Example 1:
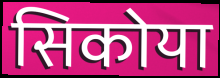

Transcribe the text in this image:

सिकोया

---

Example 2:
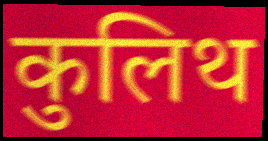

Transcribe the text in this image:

कुलिथ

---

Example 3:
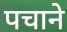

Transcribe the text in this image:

पचाने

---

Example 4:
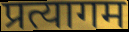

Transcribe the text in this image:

प्रत्यागम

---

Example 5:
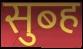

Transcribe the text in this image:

सुब्ह